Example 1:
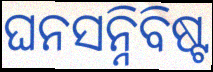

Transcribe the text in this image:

ଘନସନ୍ନିବିଷ୍ଟ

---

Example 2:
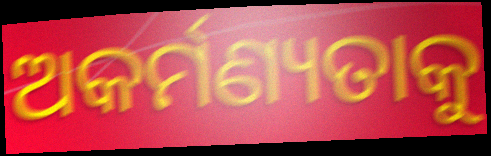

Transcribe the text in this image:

ଅକର୍ମଣ୍ୟତାକୁ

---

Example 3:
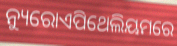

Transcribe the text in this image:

ନ୍ୟୁରୋଏପିଥେଲିୟମରେ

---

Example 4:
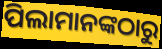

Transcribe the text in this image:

ପିଲାମାନଙ୍କଠାରୁ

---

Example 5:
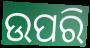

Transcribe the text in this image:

ଉପରି